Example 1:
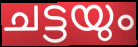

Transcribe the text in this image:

ചട്ടയും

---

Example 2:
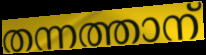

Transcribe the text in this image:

തന്നത്താന്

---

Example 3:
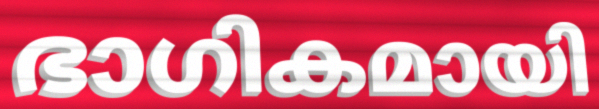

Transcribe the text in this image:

ഭാഗികമായി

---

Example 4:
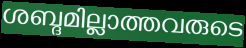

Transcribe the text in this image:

ശബ്ദമില്ലാത്തവരുടെ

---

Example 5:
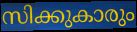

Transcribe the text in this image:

സിക്കുകാരും